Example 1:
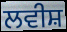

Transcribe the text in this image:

ਲਵੀਸ਼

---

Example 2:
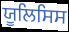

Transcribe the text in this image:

ਯੂਲਿਸਿਸ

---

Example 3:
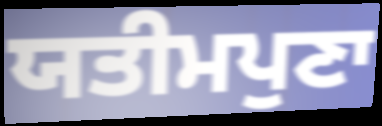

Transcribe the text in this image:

ਯਤੀਮਪੁਣਾ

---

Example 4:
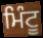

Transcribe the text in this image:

ਮਿੰਟੂ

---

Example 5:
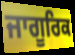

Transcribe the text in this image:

ਜਾਗੂਰਿਕ